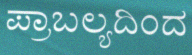
ಪ್ರಾಬಲ್ಯದಿಂದ